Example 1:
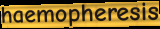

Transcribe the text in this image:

haemopheresis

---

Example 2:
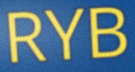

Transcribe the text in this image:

RYB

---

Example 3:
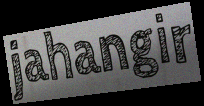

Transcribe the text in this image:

jahangir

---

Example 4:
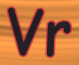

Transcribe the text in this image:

Vr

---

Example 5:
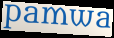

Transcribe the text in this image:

pamwa